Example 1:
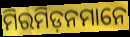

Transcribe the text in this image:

ମିରମିଡ଼ନମାନେ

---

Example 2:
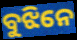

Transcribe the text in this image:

ବୁଝିନେ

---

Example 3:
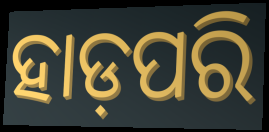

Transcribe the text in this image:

ହାଡ଼ପରି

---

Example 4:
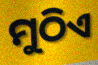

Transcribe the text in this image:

ମୁଠିଏ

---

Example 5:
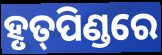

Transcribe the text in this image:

ହୃତ୍‌ପିଣ୍ଡରେ